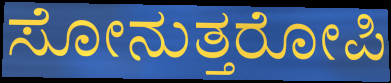
ಸೋನುತ್ತರೋಪಿ